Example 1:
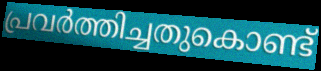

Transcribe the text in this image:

പ്രവർത്തിച്ചതുകൊണ്ട്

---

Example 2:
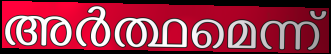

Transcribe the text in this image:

അർത്ഥമെന്ന്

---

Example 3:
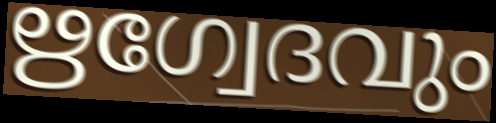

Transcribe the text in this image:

ഋഗ്വേദവും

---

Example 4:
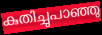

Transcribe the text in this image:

കുതിച്ചുപാഞ്ഞു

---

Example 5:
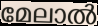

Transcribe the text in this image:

മേലാൽ